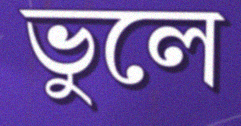
ভুলে